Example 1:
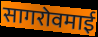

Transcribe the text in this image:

सागरोवमाई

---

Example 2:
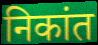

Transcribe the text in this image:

निकांत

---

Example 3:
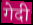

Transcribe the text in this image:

गेदी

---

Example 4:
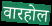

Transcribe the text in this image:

वारहोल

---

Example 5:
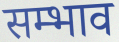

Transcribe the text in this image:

सम्भाव